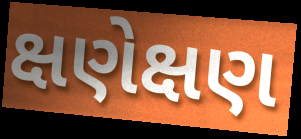
ક્ષણેક્ષણ